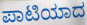
ಪಾಟಿಯಾದ